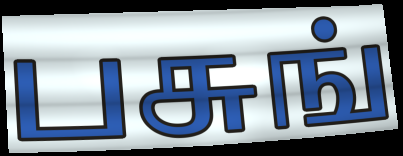
பசுங்